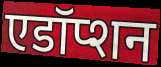
एडॉप्शन